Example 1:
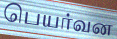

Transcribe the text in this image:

பெயர்வன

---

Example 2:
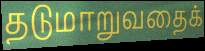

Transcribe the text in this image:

தடுமாறுவதைக்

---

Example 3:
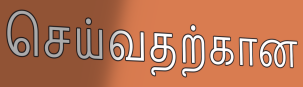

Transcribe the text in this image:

செய்வதற்கான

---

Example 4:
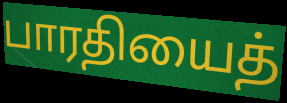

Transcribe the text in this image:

பாரதியைத்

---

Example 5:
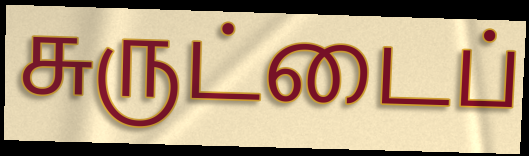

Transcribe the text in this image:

சுருட்டைப்